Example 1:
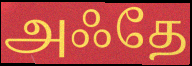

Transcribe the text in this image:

அஃதே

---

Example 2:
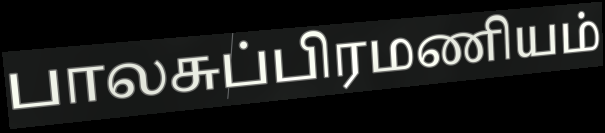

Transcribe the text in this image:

பாலசுப்பிரமணியம்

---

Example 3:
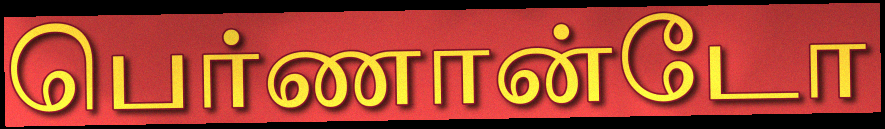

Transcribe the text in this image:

பெர்ணான்டோ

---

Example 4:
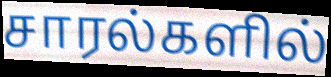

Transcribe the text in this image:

சாரல்களில்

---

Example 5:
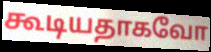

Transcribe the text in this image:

கூடியதாகவோ